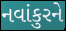
નવાંકુરને